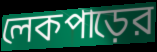
লেকপাড়ের